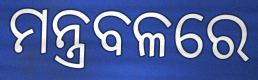
ମନ୍ତ୍ରବଳରେ